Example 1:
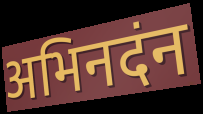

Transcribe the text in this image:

अभिनदंन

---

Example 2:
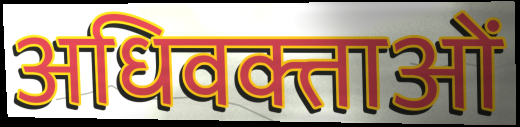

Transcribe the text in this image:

अधिवक्ताओं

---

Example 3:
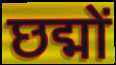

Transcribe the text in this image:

छद्मों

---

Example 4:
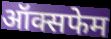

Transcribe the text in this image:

ऑक्सफेम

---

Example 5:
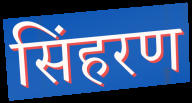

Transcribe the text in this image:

सिंहरण